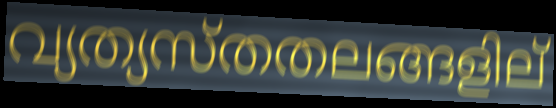
വ്യത്യസ്തതലങ്ങളില്